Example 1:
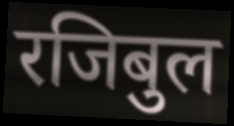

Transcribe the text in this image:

रजिबुल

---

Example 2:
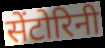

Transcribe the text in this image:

सेंटोरिनी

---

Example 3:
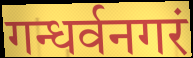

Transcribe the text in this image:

गन्धर्वनगरं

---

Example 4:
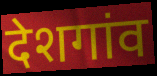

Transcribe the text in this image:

देशगांव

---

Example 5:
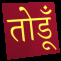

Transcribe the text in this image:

तोडूँ